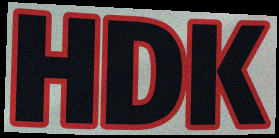
HDK